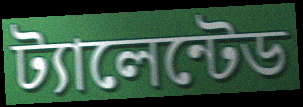
ট্যালেন্টেড